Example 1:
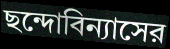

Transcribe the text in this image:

ছন্দোবিন্যাসের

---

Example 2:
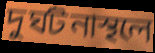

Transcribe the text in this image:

দুর্ঘটনাস্থলে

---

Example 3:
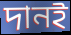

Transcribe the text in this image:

দানই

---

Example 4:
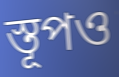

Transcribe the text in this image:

স্তূপও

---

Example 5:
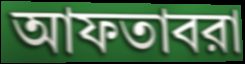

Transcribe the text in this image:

আফতাবরা